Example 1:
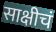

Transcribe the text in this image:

साक्षीचं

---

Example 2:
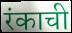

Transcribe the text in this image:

रंकाची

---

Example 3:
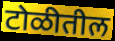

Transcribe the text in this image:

टोळीतील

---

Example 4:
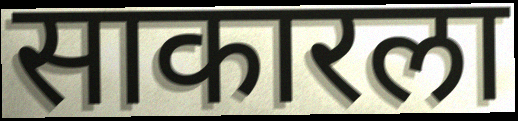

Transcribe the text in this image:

साकारला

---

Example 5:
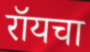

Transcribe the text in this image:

रॉयचा